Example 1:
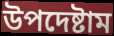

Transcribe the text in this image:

উপদেষ্টাম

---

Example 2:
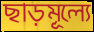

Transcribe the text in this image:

ছাড়মূল্যে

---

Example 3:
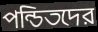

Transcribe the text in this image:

পন্ডিতদের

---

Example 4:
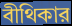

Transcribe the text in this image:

বীথিকার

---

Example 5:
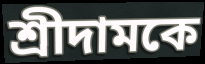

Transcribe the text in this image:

শ্রীদামকে